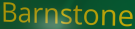
Barnstone